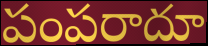
పంపరాదూ